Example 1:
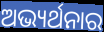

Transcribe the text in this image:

ଅଭ୍ୟର୍ଥନାର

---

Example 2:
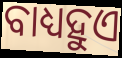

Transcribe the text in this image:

ବାଧ୍ୟହୁଏ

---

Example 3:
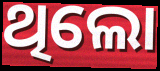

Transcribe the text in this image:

ଥିଲୋ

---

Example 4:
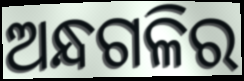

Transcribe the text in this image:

ଅନ୍ଧଗଳିର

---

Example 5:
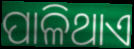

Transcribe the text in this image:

ପାଳିଥାଏ